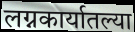
लग्नकार्यातल्या